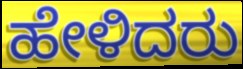
ಹೇಳಿದರು